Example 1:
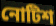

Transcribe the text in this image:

নোটিশ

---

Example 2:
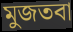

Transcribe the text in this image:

মুজতবা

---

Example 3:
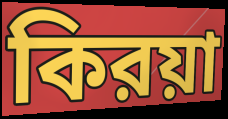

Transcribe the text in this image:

কিরয়া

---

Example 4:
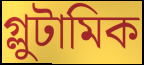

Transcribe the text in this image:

গ্লুটামিক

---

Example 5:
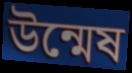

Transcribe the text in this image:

উন্মেষ